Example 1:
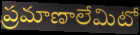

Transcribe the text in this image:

ప్రమాణాలేమిటో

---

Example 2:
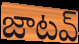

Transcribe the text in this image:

జాటవ్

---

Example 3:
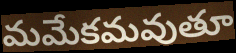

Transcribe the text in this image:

మమేకమవుతూ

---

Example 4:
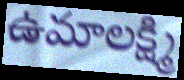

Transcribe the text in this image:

ఉమాలక్ష్మి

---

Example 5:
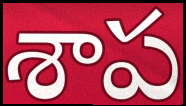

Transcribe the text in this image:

శాప